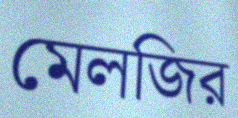
মেলজির